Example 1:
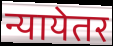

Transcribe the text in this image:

न्यायेतर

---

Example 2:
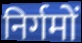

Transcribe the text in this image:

निर्गमों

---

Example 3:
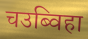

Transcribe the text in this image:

चउब्विहा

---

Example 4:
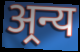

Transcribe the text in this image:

अ्रन्य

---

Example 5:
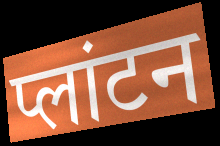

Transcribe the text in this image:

प्लांटन